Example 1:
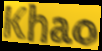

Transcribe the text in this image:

Khao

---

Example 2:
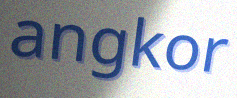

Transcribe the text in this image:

angkor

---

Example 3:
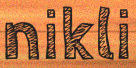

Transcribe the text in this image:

nikli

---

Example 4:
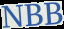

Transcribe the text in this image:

NBB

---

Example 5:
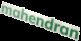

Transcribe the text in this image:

mahendran